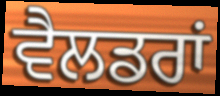
ਵੈਲਡਰਾਂ